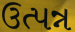
ઉત્પન્ન